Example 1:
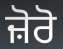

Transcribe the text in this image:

ਜ਼ੋਰੋ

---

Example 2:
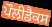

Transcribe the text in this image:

ਪੌਲੀਡੈਕਸ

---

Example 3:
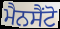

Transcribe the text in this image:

ਮੈਨਸੈਂਟੋ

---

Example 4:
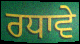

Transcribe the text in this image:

ਰਧਾਵੇ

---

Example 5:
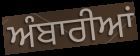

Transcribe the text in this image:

ਅੰਬਾਰੀਆਂ